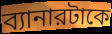
ব্যানারটাকে